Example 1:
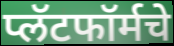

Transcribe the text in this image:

प्लॅटफॉर्मचे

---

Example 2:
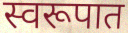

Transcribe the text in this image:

स्वरूपात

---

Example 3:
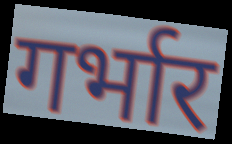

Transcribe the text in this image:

गर्भार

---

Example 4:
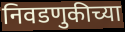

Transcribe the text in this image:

निवडणुकीच्या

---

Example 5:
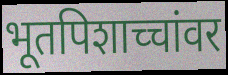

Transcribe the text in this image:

भूतपिशाच्चांवर